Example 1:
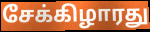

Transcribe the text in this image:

சேக்கிழாரது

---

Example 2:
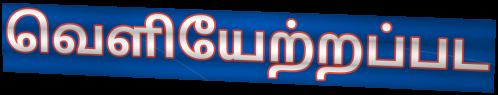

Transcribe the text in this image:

வெளியேற்றப்பட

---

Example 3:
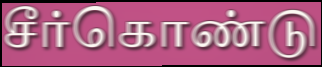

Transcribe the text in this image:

சீர்கொண்டு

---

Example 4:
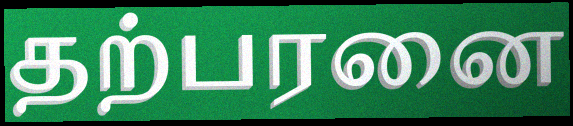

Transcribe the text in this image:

தற்பரனை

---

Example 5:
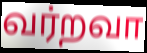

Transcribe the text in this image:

வர்றவா